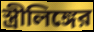
স্ত্রীলিঙ্গের